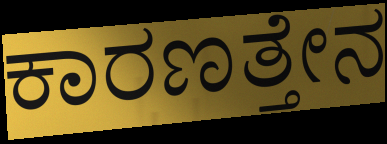
ಕಾರಣತ್ತೇನ